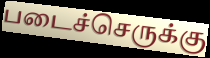
படைச்செருக்கு